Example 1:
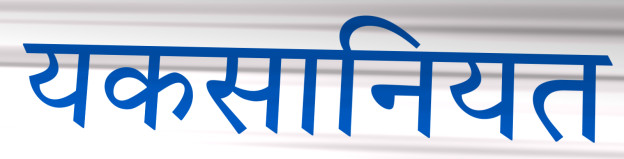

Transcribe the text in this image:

यकसानियत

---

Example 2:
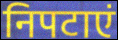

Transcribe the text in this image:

निपटाएं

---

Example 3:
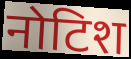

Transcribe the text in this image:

नोटिश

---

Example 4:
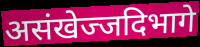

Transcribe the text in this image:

असंखेज्जदिभागे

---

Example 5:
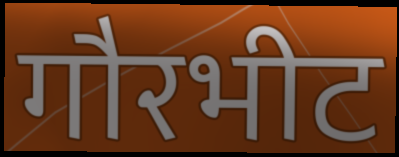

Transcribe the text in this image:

गौरभीट